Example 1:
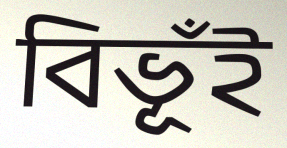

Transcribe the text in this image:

বিভূঁই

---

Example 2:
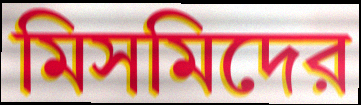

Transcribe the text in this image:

মিসমিদের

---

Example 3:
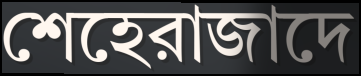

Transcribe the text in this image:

শেহেরাজাদে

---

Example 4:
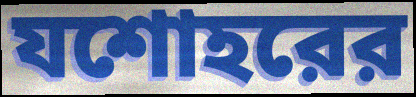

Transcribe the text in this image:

যশোহরের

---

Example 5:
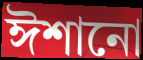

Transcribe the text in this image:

ঈশানো